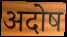
अदोष